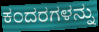
ಕಂದರಗಳನ್ನು